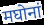
मघोनां